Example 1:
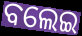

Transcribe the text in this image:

ବଲେଇ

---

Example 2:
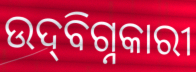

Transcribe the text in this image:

ଉଦ୍‌ବିଗ୍ନକାରୀ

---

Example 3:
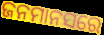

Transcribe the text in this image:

ଜନମାନସରେ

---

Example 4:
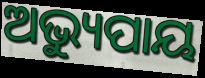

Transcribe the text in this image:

ଅଭ୍ୟୁପାୟ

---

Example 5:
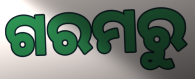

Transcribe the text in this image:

ଗରମରୁ